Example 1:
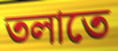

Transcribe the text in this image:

তলাতে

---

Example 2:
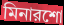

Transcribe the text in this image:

মিনারশো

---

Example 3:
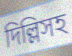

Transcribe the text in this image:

দিল্লিসহ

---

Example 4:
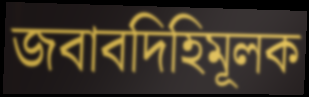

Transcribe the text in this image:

জবাবদিহিমূলক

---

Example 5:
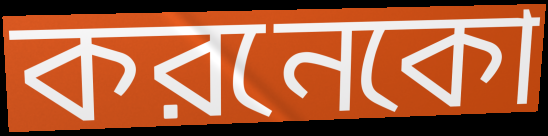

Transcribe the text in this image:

করনেকো